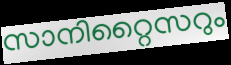
സാനിറ്റൈസറും